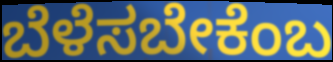
ಬೆಳೆಸಬೇಕೆಂಬ